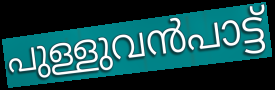
പുള്ളുവൻപാട്ട്